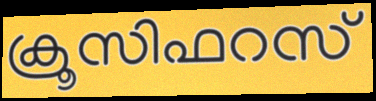
ക്രൂസിഫറസ്